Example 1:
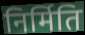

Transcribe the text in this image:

निर्मिति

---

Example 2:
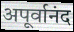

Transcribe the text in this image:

अपूर्वानंद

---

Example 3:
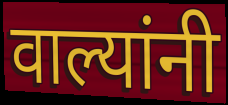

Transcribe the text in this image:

वाल्यांनी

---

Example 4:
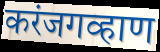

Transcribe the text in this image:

करंजगव्हाण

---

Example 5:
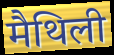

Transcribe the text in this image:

मैथिली